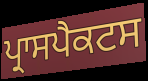
ਪ੍ਰਾਸਪੈਕਟਸ